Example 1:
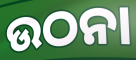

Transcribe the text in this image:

ଉଠନା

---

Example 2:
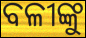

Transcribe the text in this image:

ବଳୀଙ୍କୁ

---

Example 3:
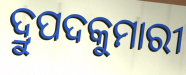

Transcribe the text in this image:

ଦ୍ରୁପଦକୁମାରୀ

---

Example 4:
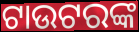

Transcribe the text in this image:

ଟାଉଟରଙ୍କ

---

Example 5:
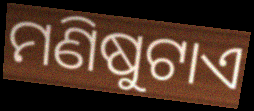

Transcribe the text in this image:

ମଣିଷୁଟାଏ